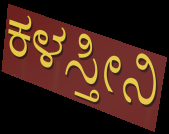
ಕಳಸ್ತೀನಿ